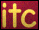
itc